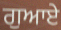
ਗੁਆਏ